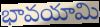
భావయామి